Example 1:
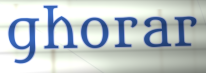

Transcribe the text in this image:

ghorar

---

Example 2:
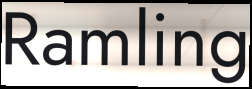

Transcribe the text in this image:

Ramling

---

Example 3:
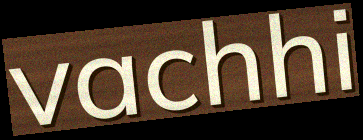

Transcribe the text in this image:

vachhi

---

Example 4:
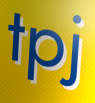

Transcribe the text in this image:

tpj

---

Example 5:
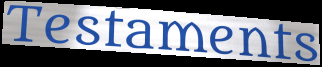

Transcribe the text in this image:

Testaments